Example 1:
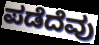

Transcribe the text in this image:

ಪಡೆದೆವು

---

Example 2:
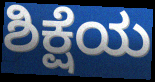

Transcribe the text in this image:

ಶಿಕ್ಷೆಯ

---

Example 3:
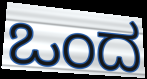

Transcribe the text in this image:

ಒಂದ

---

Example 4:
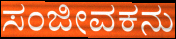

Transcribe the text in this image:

ಸಂಜೀವಕನು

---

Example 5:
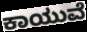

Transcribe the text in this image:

ಕಾಯುವೆ